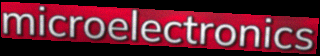
microelectronics